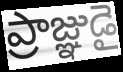
ప్రాజ్ఞుడై